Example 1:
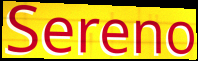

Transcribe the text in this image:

Sereno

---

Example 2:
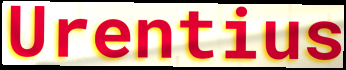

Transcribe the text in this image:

Urentius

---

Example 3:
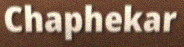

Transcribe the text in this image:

Chaphekar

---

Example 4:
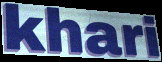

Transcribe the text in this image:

khari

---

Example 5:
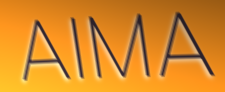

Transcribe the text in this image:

AIMA